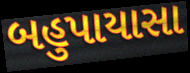
બહુપાયાસા